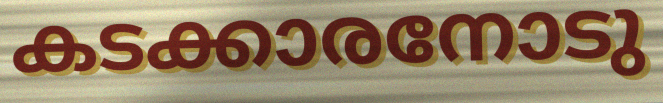
കടക്കാരനോടു